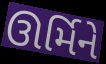
ઊર્મિને